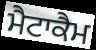
ਮੈਟਾਕੈਮ